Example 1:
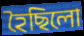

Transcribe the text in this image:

হৈছিলো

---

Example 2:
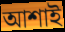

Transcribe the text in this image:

আশাই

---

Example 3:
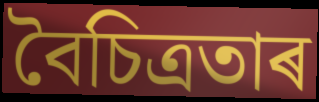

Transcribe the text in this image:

বৈচিত্ৰতাৰ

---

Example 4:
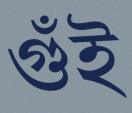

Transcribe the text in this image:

গুঁই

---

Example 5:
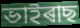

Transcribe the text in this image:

ভাইৰাছ